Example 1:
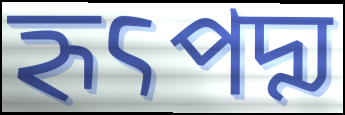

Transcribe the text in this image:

হৃৎপদ্ম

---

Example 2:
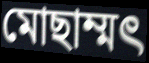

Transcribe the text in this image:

মোছাম্মৎ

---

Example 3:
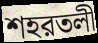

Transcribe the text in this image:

শহরতলী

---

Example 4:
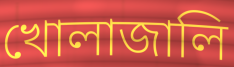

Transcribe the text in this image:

খোলাজালি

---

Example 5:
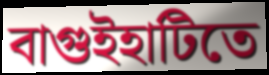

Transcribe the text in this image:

বাগুইহাটিতে